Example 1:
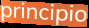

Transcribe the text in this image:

principio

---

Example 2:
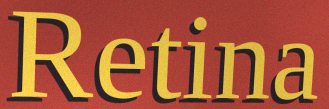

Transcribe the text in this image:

Retina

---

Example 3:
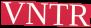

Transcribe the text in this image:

VNTR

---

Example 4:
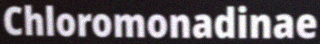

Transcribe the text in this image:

Chloromonadinae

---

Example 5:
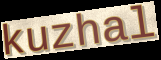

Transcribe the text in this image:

kuzhal